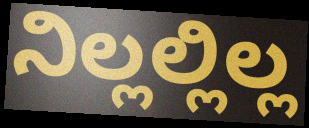
ನಿಲ್ಲಲ್ಲಿಲ್ಲ